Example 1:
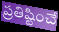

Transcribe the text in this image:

ప్రతిష్టించే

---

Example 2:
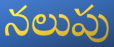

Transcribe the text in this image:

నలుపు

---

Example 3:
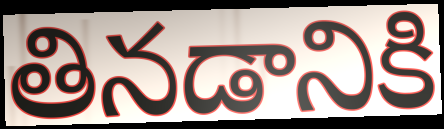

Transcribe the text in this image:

తినడానికి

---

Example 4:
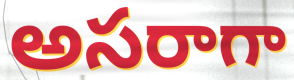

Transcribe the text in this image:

అసరాగా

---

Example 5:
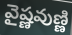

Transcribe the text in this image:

వైష్ణవుణ్ణి